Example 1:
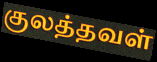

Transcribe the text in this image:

குலத்தவள்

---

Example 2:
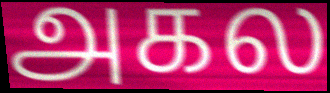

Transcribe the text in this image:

அகல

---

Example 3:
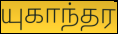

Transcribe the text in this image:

யுகாந்தர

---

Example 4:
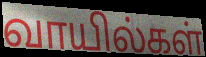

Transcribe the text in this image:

வாயில்கள்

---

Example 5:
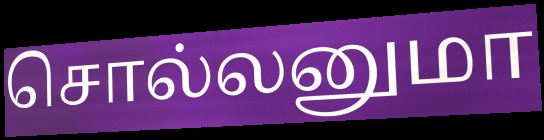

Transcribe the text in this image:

சொல்லனுமா